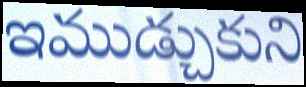
ఇముడ్చుకుని